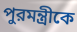
পুরমন্ত্রীকে